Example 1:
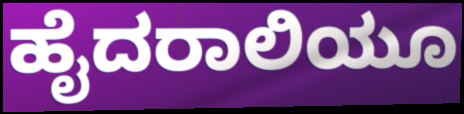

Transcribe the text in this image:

ಹೈದರಾಲಿಯೂ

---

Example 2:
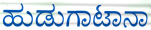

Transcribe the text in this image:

ಹುಡುಗಾಟಾನಾ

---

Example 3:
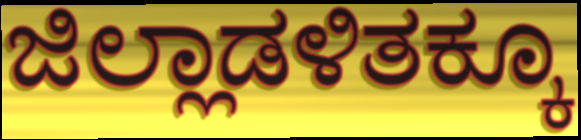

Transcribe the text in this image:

ಜಿಲ್ಲಾಡಳಿತಕ್ಕೂ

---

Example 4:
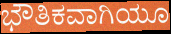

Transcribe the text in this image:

ಭೌತಿಕವಾಗಿಯೂ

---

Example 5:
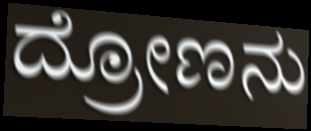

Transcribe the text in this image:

ದ್ರೋಣನು